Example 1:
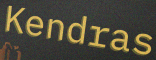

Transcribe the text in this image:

Kendras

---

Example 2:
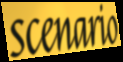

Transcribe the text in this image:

scenario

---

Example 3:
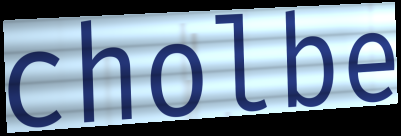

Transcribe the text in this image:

cholbe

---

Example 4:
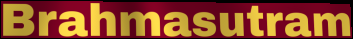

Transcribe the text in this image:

Brahmasutram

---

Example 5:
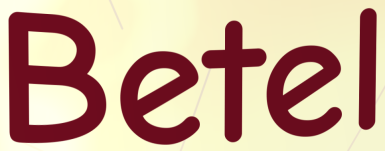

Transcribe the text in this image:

Betel